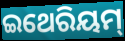
ଇଥେରିୟମ୍